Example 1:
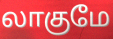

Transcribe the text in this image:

லாகுமே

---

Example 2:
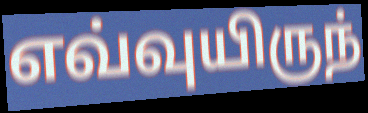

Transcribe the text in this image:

எவ்வுயிருந்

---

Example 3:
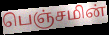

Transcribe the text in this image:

பெஞ்சமின்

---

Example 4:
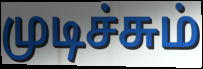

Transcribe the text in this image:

முடிச்சும்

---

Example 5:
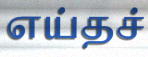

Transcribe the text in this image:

எய்தச்